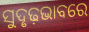
ସୁଦୃଢ଼ଭାବରେ